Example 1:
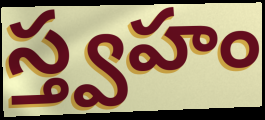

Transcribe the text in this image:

స్త్వహం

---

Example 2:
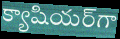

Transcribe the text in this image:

క్యాషియర్‌గా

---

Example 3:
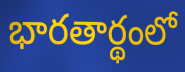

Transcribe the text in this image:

భారతార్థంలో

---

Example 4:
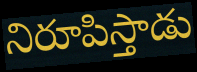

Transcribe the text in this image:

నిరూపిస్తాడు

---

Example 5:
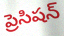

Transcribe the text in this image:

ప్రెసిషన్